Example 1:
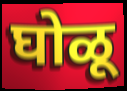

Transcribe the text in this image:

घोळू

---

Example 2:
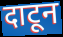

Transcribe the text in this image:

दाटून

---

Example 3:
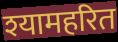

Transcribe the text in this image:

श्यामहरित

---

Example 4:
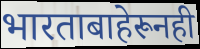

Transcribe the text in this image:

भारताबाहेरूनही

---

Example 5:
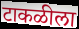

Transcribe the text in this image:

टाकळीला